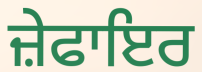
ਜ਼ੇਫਾਇਰ